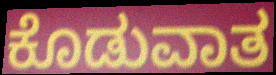
ಕೊಡುವಾತ